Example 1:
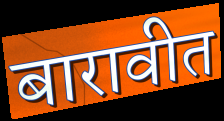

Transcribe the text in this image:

बारावीत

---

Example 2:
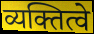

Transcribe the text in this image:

व्यक्तित्वे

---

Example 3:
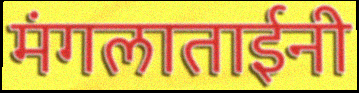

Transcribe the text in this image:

मंगलाताईनी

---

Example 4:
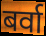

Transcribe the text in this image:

बर्वा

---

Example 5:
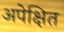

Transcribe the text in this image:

अपेक्षित